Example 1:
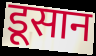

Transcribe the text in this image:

डूसान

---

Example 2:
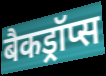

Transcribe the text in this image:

बैकड्रॉप्स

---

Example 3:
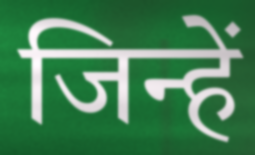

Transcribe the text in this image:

जिन्‍हें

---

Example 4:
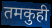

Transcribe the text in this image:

तमकुही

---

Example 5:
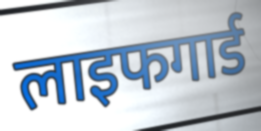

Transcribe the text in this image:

लाइफगार्ड